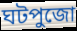
ঘটপুজো